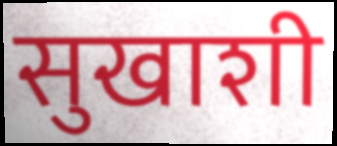
सुखाशी